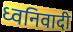
ध्वनिवादी